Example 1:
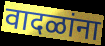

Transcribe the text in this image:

वादळांना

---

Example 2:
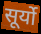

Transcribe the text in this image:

सूर्यो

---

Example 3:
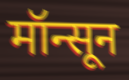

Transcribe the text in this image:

मॉन्सून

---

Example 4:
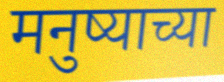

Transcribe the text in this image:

मनुष्याच्या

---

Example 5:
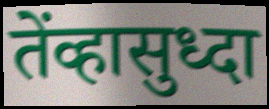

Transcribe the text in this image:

तेंव्हासुध्दा